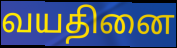
வயதினை